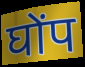
घोंप